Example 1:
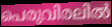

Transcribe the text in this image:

പെരുവിരലിൽ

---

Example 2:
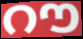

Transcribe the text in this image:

റൗ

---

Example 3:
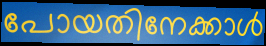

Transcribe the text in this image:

പോയതിനേക്കാൾ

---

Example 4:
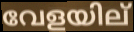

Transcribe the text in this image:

വേളയില്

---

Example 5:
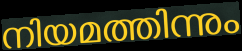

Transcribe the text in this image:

നിയമത്തിന്നും